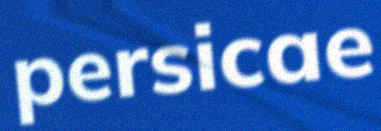
persicae